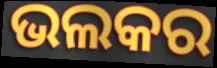
ଭଲକର